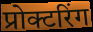
प्रोक्टरिंग